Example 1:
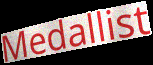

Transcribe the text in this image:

Medallist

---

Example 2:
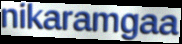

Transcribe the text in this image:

nikaramgaa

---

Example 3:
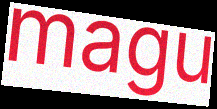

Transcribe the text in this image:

magu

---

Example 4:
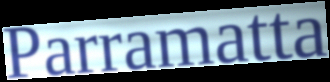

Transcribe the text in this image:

Parramatta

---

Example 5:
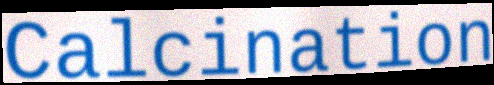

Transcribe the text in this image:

Calcination